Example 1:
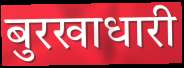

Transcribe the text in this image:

बुरखाधारी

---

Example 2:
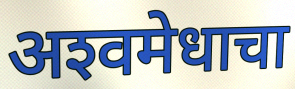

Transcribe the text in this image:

अश्‍वमेधाचा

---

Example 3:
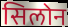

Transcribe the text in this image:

सिलोन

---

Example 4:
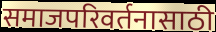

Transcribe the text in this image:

समाजपरिवर्तनासाठी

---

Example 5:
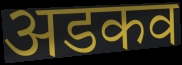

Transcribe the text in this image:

अडकव